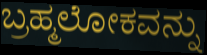
ಬ್ರಹ್ಮಲೋಕವನ್ನು